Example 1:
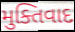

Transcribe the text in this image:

મુક્તિવાદ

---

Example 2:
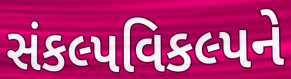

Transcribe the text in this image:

સંકલ્પવિકલ્પને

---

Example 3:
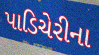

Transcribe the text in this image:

પાડિચેરીના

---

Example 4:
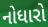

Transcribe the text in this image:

નોધારો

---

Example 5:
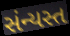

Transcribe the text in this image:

સંન્યસ્ત